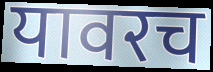
यावरच